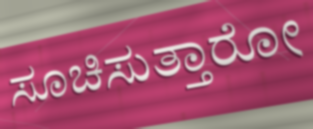
ಸೂಚಿಸುತ್ತಾರೋ